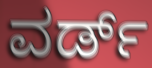
ವರ್ಡ್